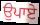
ਉਪਾਏ